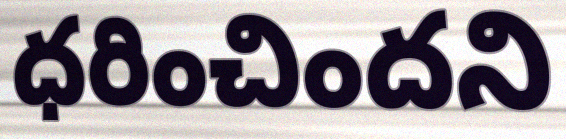
ధరించిందని